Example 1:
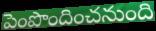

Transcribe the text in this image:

పెంపొందించనుంది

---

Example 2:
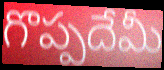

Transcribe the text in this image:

గొప్పదేమీ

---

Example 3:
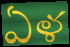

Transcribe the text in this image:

ఏళ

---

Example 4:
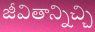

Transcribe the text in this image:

జీవితాన్నిచ్చి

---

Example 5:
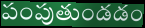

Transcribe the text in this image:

పంపుతుండడం